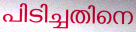
പിടിച്ചതിനെ